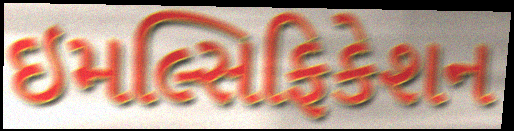
ઇમલ્સિફિકેશન